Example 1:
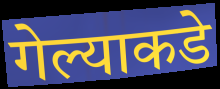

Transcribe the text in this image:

गेल्याकडे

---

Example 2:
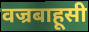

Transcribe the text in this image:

वज्रबाहूसी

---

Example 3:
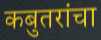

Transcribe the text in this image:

कबुतरांचा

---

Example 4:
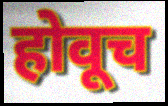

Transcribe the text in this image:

होवूच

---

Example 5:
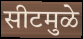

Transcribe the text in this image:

सीटमुळे